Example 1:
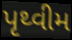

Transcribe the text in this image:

પૃથ્વીમ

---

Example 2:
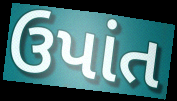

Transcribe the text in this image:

ઉપાંત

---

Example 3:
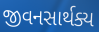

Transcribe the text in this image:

જીવનસાર્થક્ય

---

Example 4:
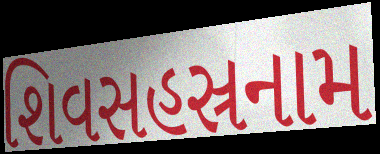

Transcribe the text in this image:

શિવસહસ્રનામ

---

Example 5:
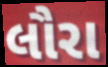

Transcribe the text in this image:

લૌરા